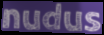
nudus